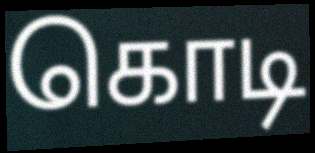
கொடி